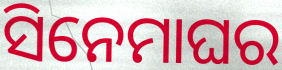
ସିନେମାଘର